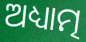
ଅଧ୍ୟାତ୍ମ